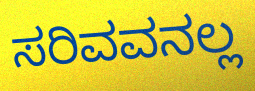
ಸರಿವವನಲ್ಲ